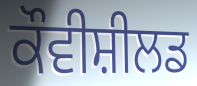
ਕੌਵੀਸ਼ੀਲਡ